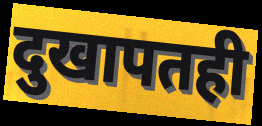
दुखापतही